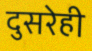
दुसरेही